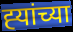
ह्‍यांच्या